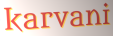
karvani